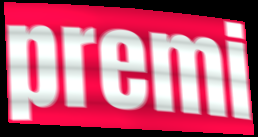
premi